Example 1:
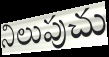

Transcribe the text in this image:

నిలుపుచు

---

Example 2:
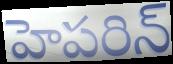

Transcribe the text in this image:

హెపరిన్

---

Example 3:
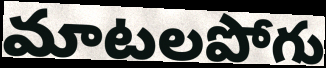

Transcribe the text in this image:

మాటలపోగు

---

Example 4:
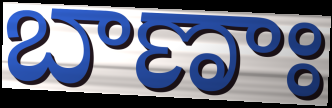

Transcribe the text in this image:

బాణాః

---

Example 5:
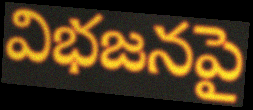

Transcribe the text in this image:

విభజనపై